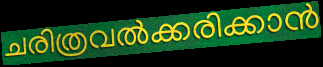
ചരിത്രവൽക്കരിക്കാൻ